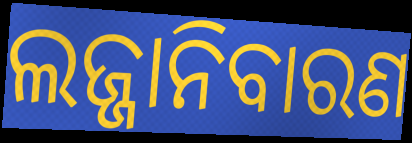
ଲଜ୍ଜାନିବାରଣ